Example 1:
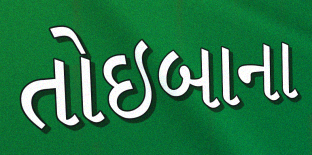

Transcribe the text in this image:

તોઇબાના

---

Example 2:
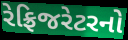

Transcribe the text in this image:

રેફ્રિજરેટરનો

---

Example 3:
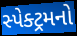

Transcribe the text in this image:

સ્પેક્ટ્રમનો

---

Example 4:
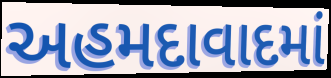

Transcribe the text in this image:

અહમદાવાદમાં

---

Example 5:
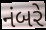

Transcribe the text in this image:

નંબરે